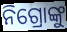
ନିଗ୍ରୋଙ୍କୁ